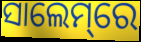
ସାଲେମ୍‌ରେ